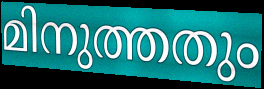
മിനുത്തതും